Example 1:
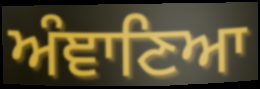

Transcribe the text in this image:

ਅੰਞਾਣਿਆ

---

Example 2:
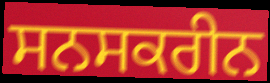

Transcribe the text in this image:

ਸਨਸਕਰੀਨ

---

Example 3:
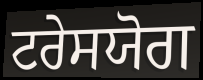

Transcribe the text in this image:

ਟਰੇਸਯੋਗ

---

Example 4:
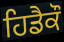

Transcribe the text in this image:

ਹਿਡੈਕੌ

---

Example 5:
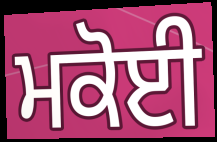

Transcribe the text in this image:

ਮਕੋਈ